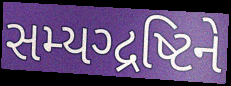
સમ્યગ્દ્રષ્ટિને